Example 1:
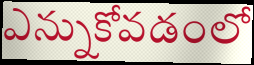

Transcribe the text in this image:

ఎన్నుకోవడంలో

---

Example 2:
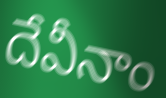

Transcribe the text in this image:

దేవీనాం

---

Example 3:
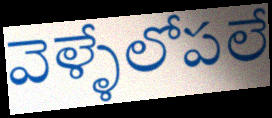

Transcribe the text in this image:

వెళ్ళేలోపలే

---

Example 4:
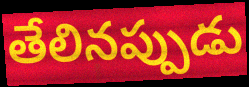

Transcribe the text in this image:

తేలినప్పుడు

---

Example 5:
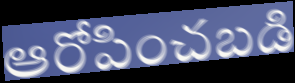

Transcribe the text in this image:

ఆరోపించబడి